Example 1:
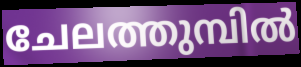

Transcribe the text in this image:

ചേലത്തുമ്പിൽ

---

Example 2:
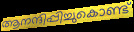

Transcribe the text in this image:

ആനന്ദിപ്പിച്ചുകൊണ്ട്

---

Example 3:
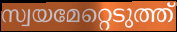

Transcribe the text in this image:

സ്വയമേറ്റെടുത്ത്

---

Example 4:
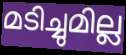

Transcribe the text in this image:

മടിച്ചുമില്ല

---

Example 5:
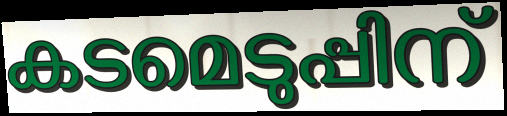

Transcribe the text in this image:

കടമെടുപ്പിന്